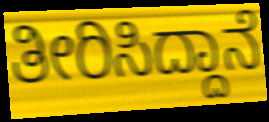
ತೀರಿಸಿದ್ದಾನೆ